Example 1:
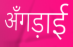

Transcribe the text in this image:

अँगड़ाई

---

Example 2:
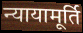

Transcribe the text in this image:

न्यायामूर्ति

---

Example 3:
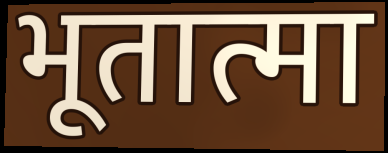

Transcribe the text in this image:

भूतात्मा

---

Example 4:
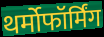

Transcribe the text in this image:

थर्मोफॉर्मिंग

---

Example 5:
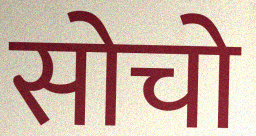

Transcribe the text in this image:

सोचो